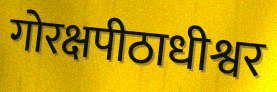
गोरक्षपीठाधीश्वर